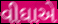
વીઘાએ